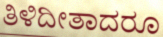
ತಿಳಿದೀತಾದರೂ